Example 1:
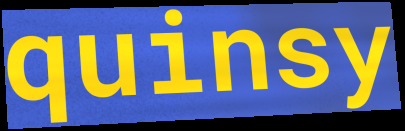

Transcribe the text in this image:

quinsy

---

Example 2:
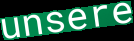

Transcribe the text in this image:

unsere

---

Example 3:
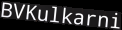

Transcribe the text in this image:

BVKulkarni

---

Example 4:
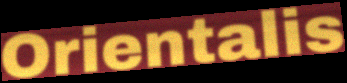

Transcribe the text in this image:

Orientalis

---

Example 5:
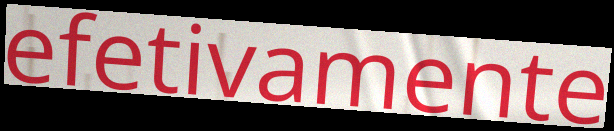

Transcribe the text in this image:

efetivamente